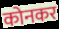
कोनकर